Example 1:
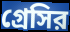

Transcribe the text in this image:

গ্রেসির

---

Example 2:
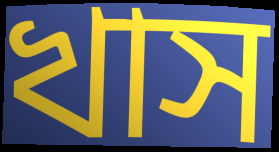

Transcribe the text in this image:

খাস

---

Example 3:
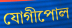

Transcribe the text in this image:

যোগীপোল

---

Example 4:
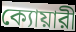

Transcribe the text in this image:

ক্যোয়ারী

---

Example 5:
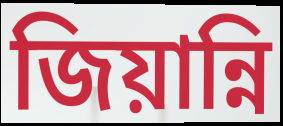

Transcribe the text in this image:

জিয়ান্নি